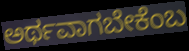
ಅರ್ಥವಾಗಬೇಕೆಂಬ